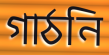
গাঠনি